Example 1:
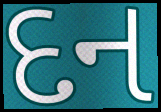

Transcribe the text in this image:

દન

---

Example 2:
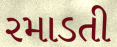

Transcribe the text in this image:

રમાડતી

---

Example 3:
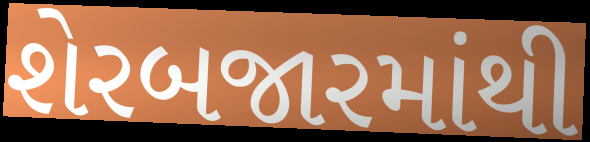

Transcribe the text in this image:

શેરબજારમાંથી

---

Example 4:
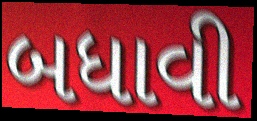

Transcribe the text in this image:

બધાવી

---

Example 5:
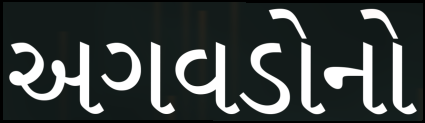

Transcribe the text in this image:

અગવડોનો